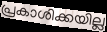
പ്രകാശിക്കയില്ല